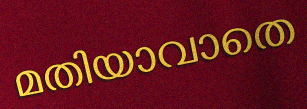
മതിയാവാതെ